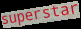
superstar